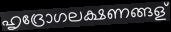
ഹൃദ്രോഗലക്ഷണങ്ങള്